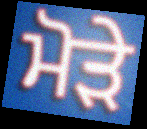
ਮੋੜੇ